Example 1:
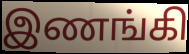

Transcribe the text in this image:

இணங்கி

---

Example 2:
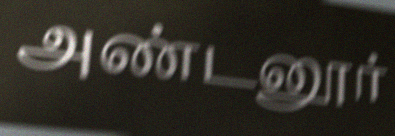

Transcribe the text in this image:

அண்டனூர்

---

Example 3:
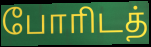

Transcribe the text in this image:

போரிடத்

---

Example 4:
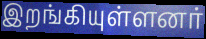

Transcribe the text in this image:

இறங்கியுள்ளனர்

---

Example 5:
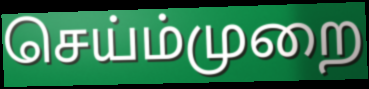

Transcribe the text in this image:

செய்ம்முறை